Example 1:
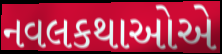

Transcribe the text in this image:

નવલકથાઓએ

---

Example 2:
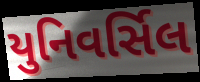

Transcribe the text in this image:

યુનિવર્સિલ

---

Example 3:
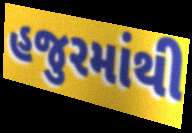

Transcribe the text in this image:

હજુરમાંથી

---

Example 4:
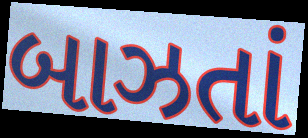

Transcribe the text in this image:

બાઝતાં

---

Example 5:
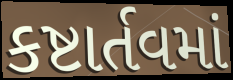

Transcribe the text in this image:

કષ્ટાર્તવમાં